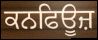
ਕਨਫਿਊਜ਼